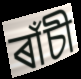
ৰাঁচী